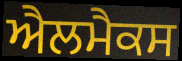
ਐਲਮੈਕਸ